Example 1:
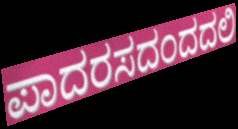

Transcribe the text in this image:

ಪಾದರಸದಂದದಲಿ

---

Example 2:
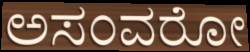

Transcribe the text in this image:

ಅಸಂವರೋ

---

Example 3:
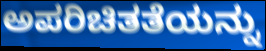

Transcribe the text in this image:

ಅಪರಿಚಿತತೆಯನ್ನು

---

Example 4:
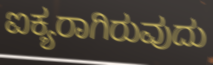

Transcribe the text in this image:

ಐಕ್ಯರಾಗಿರುವುದು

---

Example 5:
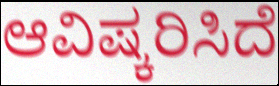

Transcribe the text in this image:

ಆವಿಷ್ಕರಿಸಿದೆ